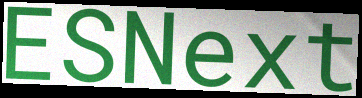
ESNext